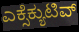
ಎಕ್ಸೆಕ್ಯುಟಿವ್